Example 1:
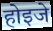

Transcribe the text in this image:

होइजे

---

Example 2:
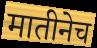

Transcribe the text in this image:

मातीनेच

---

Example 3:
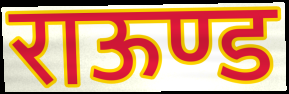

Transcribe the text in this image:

राऊण्ड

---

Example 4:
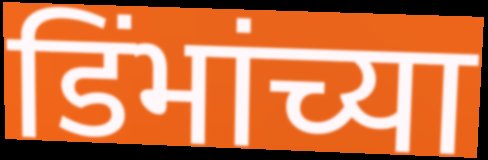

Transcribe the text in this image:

डिंभांच्या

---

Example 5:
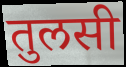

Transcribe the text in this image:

तुलसी